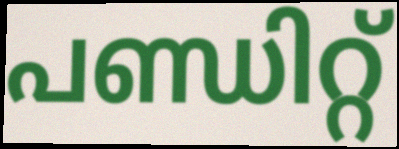
പണ്ഡിറ്റ്